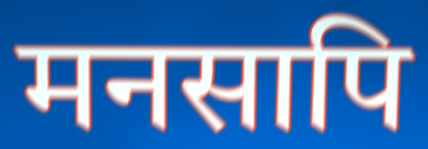
मनसापि